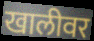
खालीवर